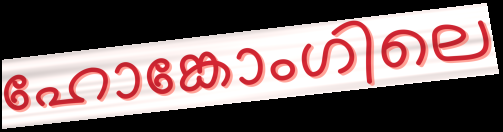
ഹോങ്കോംഗിലെ